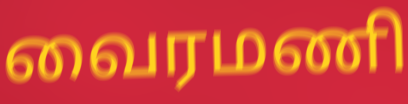
வைரமணி